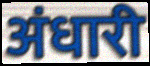
अंधारी